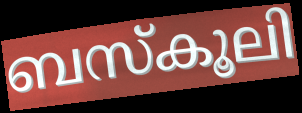
ബസ്കൂലി